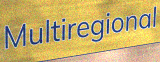
Multiregional